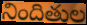
నిందితుల